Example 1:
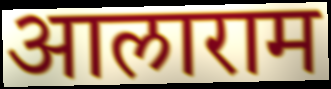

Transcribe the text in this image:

आलाराम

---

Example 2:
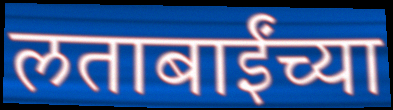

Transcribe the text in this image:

लताबाईंच्या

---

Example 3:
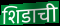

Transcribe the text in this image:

शिडाची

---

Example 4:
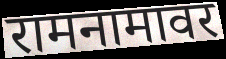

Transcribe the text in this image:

रामनामावर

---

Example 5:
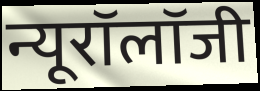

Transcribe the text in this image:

न्यूरॉलॉजी